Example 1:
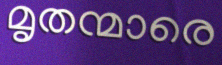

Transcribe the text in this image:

മൃതന്മാരെ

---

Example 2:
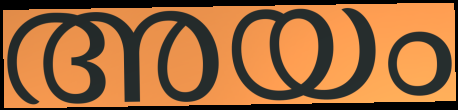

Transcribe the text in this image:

അയം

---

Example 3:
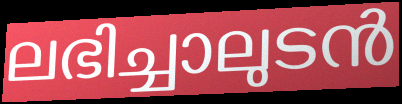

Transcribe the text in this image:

ലഭിച്ചാലുടൻ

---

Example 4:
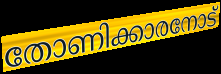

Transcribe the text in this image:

തോണിക്കാരനോട്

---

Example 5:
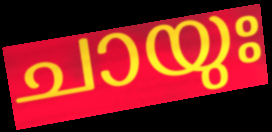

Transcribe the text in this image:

ചായുഃ